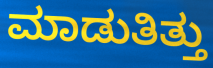
ಮಾಡುತಿತ್ತು